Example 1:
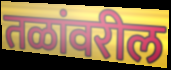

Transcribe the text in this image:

तळांवरील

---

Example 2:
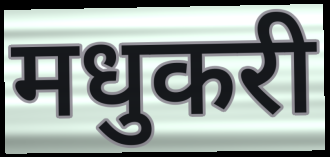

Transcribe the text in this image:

मधुकरी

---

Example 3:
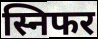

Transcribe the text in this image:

स्निफर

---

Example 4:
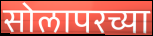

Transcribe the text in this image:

सोलापरच्या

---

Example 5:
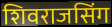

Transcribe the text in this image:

शिवराजसिंग